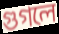
গুগলে